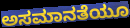
ಅಸಮಾನತೆಯೂ